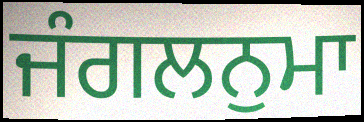
ਜੰਗਲਨੁਮਾ